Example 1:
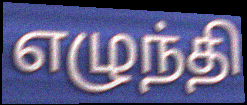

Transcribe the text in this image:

எழுந்தி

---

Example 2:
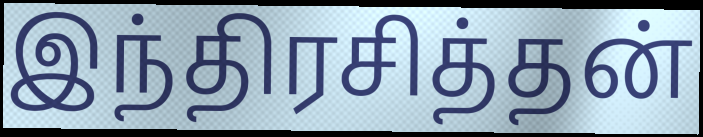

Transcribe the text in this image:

இந்திரசித்தன்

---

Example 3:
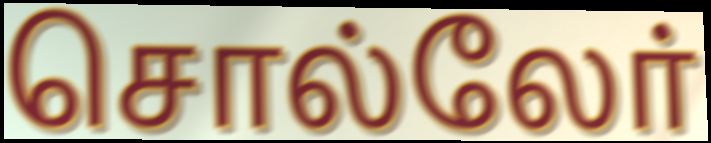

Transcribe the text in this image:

சொல்லேர்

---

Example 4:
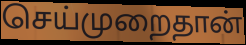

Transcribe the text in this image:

செய்முறைதான்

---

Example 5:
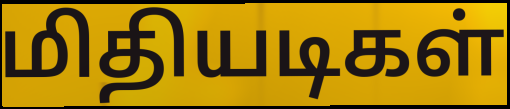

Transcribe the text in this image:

மிதியடிகள்